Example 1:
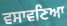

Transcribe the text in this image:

ਵਸਾਵਣਿਆ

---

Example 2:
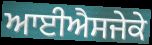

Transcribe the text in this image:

ਆਈਐਸਜੇਕੇ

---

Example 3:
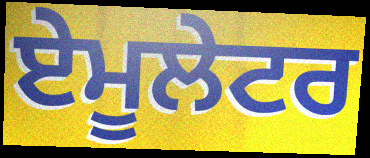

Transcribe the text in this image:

ਏਮੂਲੇਟਰ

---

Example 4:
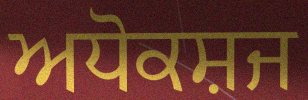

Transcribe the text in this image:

ਅਧੋਕਸ਼ਜ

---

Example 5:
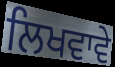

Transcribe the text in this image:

ਲਿਖਵਾਵੇ